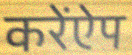
करेंऐप